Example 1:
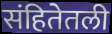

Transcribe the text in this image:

संहितेतली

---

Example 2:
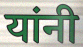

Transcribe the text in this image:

यांनी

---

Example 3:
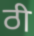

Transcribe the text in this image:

ठी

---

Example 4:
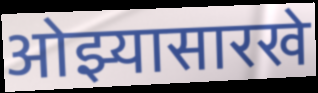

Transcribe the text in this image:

ओझ्यासारखे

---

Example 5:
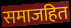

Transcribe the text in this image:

समाजहित